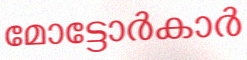
മോട്ടോർകാർ